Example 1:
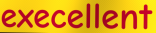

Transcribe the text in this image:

execellent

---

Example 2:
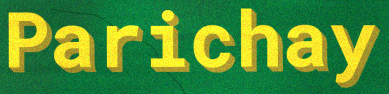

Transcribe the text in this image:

Parichay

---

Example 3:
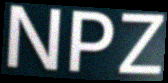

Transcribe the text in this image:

NPZ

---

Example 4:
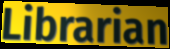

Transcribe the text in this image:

Librarian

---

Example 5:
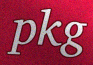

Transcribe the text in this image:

pkg